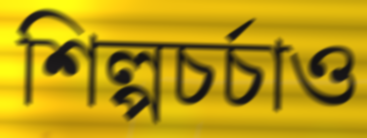
শিল্পচর্চাও